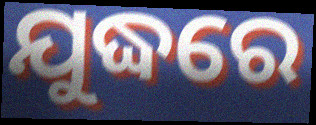
ଯୁଦ୍ଧରେ